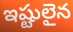
ఇష్టులైన